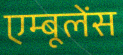
एम्बूलेंस